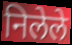
निलेले